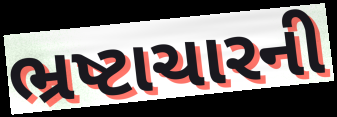
ભ્રષ્ટાચારની